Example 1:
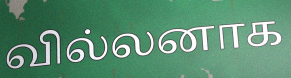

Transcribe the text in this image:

வில்லனாக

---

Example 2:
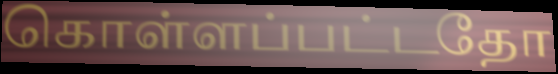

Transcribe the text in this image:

கொள்ளப்பட்டதோ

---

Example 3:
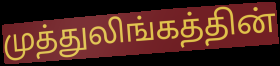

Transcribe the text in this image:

முத்துலிங்கத்தின்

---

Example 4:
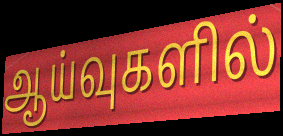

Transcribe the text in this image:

ஆய்வுகளில்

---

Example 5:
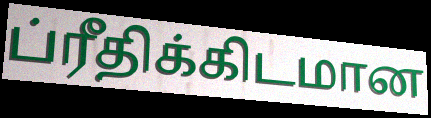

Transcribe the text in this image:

ப்ரீதிக்கிடமான